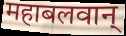
महाबलवान्